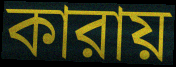
কারায়